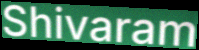
Shivaram